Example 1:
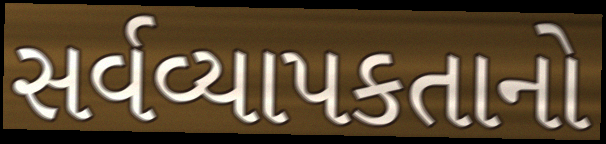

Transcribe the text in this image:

સર્વવ્યાપકતાનો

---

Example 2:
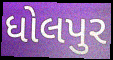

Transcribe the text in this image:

ધોલપુર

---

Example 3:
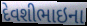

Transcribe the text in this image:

દેવશીભાઇના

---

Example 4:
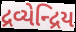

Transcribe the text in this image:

દ્રવ્યેન્દ્રિય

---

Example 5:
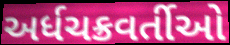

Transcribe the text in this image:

અર્ધચક્રવર્તીઓ